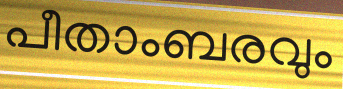
പീതാംബരവും